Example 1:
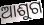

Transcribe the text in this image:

ଆଶୁଗ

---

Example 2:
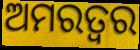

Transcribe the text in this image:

ଅମରତ୍ୱର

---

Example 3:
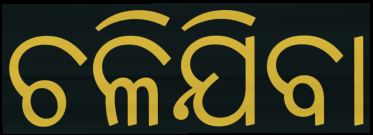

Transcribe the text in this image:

ଚଳିଯିବା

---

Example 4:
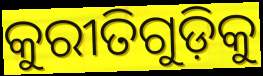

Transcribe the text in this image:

କୁରୀତିଗୁଡ଼ିକୁ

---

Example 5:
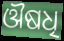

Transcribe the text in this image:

ଔଷଧି